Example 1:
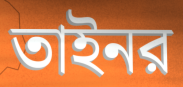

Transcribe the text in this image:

তাইনর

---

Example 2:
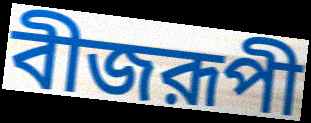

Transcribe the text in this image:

বীজরূপী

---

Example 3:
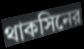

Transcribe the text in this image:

থাকসিনের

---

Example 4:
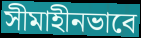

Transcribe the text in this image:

সীমাহীনভাবে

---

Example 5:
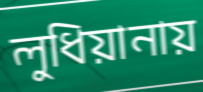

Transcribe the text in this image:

লুধিয়ানায়